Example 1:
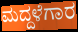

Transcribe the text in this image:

ಮದ್ದಳೆಗಾರ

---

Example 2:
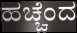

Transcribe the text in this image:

ಹಚ್ಚೆಂದ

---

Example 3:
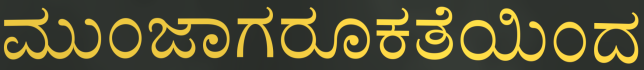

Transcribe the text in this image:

ಮುಂಜಾಗರೂಕತೆಯಿಂದ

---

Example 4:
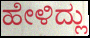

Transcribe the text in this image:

ಹೇಳಿದ್ಲು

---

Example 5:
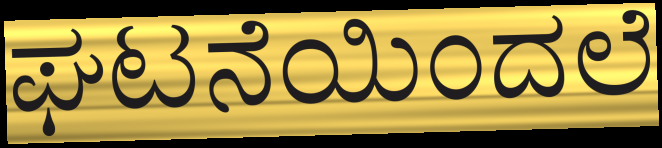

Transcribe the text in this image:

ಘಟನೆಯಿಂದಲೆ